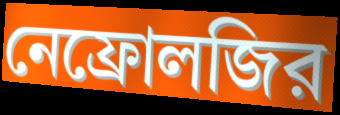
নেফ্রোলজির